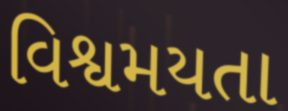
વિશ્વમયતા